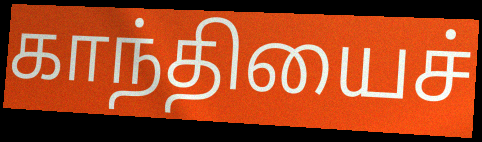
காந்தியைச்